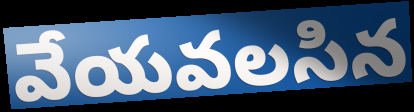
వేయవలసిన